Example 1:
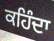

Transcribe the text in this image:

ਕਹਿੰਦਾ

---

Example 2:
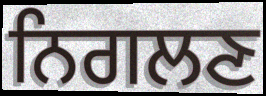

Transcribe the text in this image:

ਨਿਗਲਣ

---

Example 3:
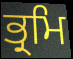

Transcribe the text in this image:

ਭ੍ਰਮਿ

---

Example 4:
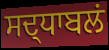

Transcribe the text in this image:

ਸਦ੍ਧਾਬਲਂ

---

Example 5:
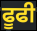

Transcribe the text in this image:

ਫੂਫੀ